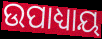
ଉପାଧ୍ୟାୟ